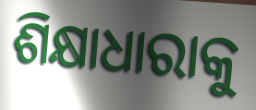
ଶିକ୍ଷାଧାରାକୁ